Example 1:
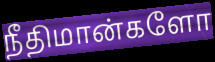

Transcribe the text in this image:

நீதிமான்களோ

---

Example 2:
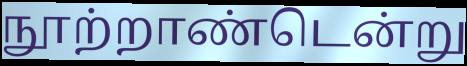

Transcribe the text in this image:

நூற்றாண்டென்று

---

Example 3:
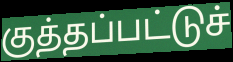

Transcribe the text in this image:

குத்தப்பட்டுச்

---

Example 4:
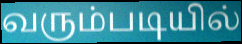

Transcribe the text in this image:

வரும்படியில்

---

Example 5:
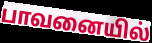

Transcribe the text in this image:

பாவனையில்